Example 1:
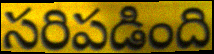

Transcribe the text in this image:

సరిపడింది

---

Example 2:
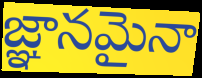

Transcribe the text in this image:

జ్ఞానమైనా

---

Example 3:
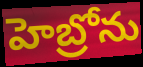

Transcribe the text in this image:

హెబ్రోను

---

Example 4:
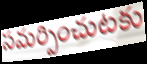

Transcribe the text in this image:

సమర్పించుటకు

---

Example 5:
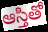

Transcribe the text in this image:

ఆస్తితో